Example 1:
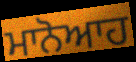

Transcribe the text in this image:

ਮਾਨੋਆਹ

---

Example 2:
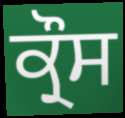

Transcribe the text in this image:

ਕ੍ਰੌਸ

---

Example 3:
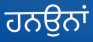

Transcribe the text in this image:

ਹਨਉਨਾਂ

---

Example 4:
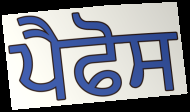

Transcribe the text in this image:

ਪੈਫੋਸ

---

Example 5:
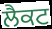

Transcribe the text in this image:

ਲੈਕਟ